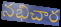
నభిచార